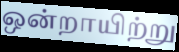
ஒன்றாயிற்று